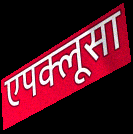
एपक्लूसा